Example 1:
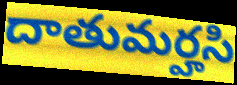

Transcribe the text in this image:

దాతుమర్హసి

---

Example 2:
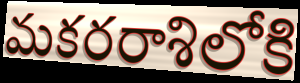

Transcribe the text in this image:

మకరరాశిలోకి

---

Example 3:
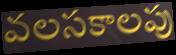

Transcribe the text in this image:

వలసకాలపు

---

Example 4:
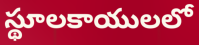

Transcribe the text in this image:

స్థూలకాయులలో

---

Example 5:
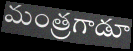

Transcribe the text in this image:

మంత్రగాడూ